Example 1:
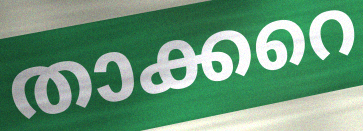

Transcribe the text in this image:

താക്കറെ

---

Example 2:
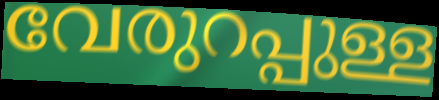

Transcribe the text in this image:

വേരുറപ്പുള്ള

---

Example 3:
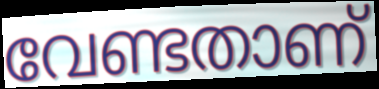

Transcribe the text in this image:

വേണ്ടതാണ്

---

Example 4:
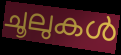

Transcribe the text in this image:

ചൂലുകൾ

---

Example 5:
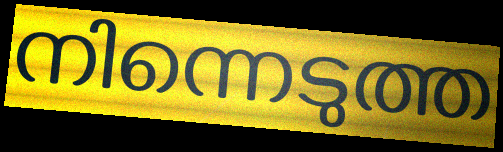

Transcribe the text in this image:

നിന്നെടുത്ത